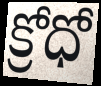
క్రోధో